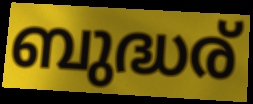
ബുദ്ധര്